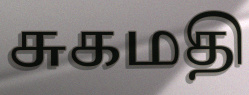
சுகமதி